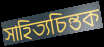
সাহিত্যচিন্তক